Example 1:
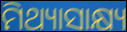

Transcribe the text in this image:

ମିଥ୍ୟାସାକ୍ଷ୍ୟ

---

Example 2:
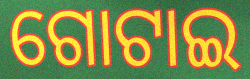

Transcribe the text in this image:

ଗୋଟାଇ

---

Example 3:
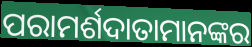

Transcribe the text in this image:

ପରାମର୍ଶଦାତାମାନଙ୍କର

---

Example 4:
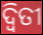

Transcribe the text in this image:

ଦ୍ୱିତୀ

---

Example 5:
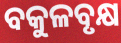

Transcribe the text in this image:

ବକୁଳବୃକ୍ଷ